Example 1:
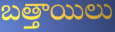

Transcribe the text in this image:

బత్తాయిలు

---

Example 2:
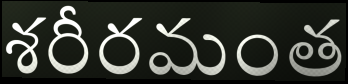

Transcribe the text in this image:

శరీరమంత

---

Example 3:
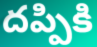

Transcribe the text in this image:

దప్పికి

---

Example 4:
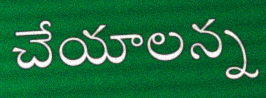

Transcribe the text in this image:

చేయాలన్న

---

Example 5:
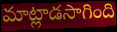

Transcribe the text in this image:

మాట్లాడసాగింది